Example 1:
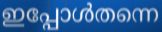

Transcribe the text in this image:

ഇപ്പോൾതന്നെ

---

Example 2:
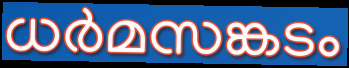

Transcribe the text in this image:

ധർമസങ്കടം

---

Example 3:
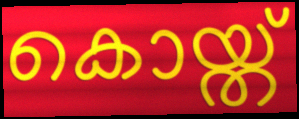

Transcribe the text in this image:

കൊയ്ത്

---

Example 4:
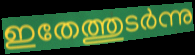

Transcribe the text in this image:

ഇതേത്തുടർന്നു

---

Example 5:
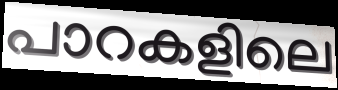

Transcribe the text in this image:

പാറകളിലെ